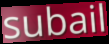
subail